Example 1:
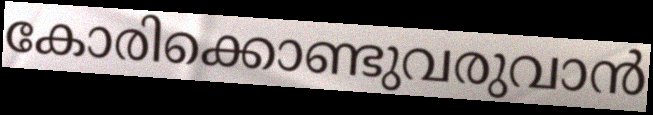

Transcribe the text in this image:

കോരിക്കൊണ്ടുവരുവാൻ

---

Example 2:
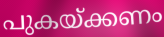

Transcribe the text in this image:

പുകയ്ക്കണം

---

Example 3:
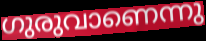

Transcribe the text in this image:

ഗുരുവാണെന്നു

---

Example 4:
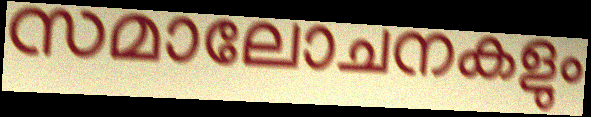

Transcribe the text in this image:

സമാലോചനകളും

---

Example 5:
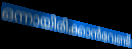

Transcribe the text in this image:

ഒന്നായിരിക്കാൻവേണ്ടി